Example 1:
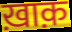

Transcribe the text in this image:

ख़ाक़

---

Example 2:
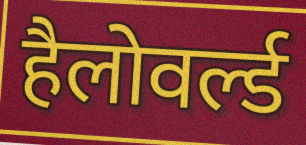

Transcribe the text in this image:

हैलोवर्ल्ड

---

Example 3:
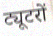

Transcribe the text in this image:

ट्यूटरों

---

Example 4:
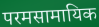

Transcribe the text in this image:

परमसामायिक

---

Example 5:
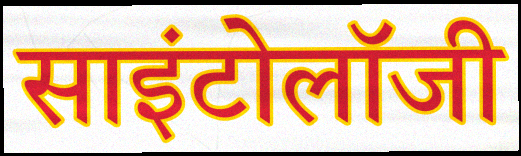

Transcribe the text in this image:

साइंटोलॉजी